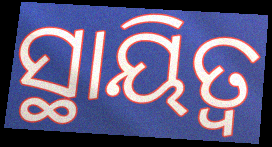
ସ୍ଥାୟିତ୍ୱ